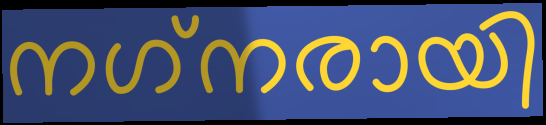
നഗ്‌നരായി